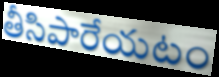
తీసిపారేయటం